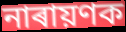
নাৰায়ণক